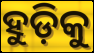
ହୁଡ଼ିକୁ